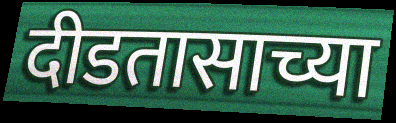
दीडतासाच्या